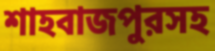
শাহবাজপুরসহ